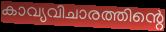
കാവ്യവിചാരത്തിന്റെ